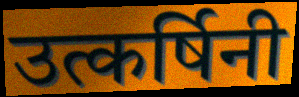
उत्कर्षिनी